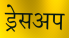
ड्रेसअप